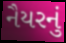
નૈયરનું